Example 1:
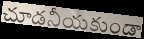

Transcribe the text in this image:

చూడనీయకుండా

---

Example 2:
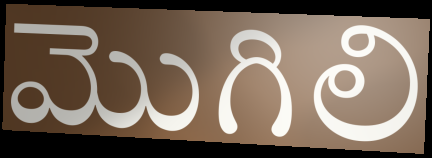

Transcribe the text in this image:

మొగిలి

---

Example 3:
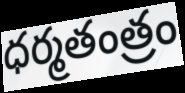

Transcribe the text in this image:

ధర్మతంత్రం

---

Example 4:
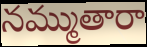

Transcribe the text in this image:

నమ్ముతారా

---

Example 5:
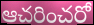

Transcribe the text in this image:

ఆచరించరో